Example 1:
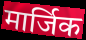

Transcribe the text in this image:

मार्जिक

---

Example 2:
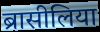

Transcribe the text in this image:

ब्रासीलिया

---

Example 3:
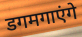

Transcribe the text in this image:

डगमगाएंगे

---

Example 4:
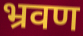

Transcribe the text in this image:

भ्रवण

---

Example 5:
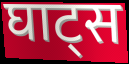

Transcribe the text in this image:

घाट्स